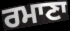
ਰਮਾਣਾ